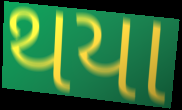
થયા